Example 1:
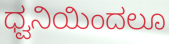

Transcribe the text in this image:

ಧ್ವನಿಯಿಂದಲೂ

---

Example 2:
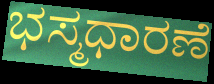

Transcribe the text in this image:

ಭಸ್ಮಧಾರಣೆ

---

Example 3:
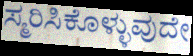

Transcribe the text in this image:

ಸ್ಮರಿಸಿಕೊಳ್ಳುವುದೇ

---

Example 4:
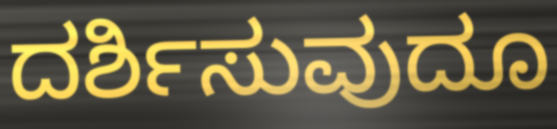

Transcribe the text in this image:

ದರ್ಶಿಸುವುದೂ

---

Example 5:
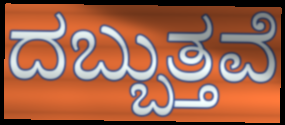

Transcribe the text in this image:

ದಬ್ಬುತ್ತವೆ